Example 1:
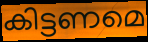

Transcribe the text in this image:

കിട്ടണമെ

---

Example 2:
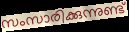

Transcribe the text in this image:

സംസാരിക്കുന്നുണ്ട്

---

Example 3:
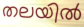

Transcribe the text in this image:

തലയിൽ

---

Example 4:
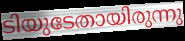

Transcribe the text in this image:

ടിയുടേതായിരുന്നു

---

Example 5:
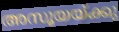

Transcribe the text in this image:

അസൂയയ്ക്കു